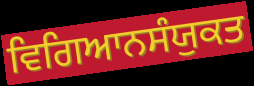
ਵਿਗਿਆਨਸੰਯੁਕਤ